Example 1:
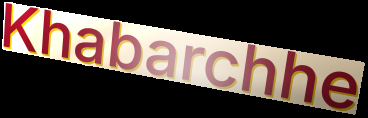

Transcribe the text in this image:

Khabarchhe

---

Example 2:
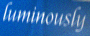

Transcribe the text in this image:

luminously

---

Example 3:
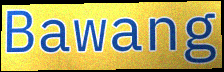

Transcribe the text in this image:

Bawang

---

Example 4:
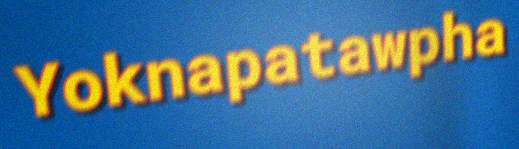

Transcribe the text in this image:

Yoknapatawpha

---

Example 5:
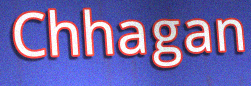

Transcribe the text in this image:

Chhagan